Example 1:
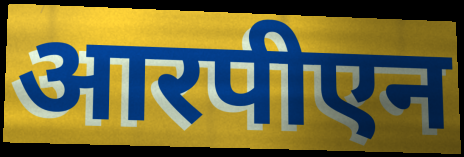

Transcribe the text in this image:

आरपीएन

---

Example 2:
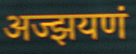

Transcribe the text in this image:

अज्झयणं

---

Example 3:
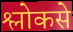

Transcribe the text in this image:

श्लोकसे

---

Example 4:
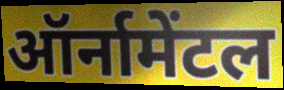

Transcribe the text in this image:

ऑर्नामेंटल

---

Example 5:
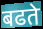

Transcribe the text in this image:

बढते